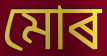
মোৰ